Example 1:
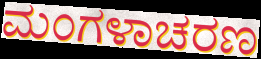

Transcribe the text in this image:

ಮಂಗಳಾಚರಣ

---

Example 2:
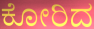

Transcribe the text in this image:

ಕೋರಿದ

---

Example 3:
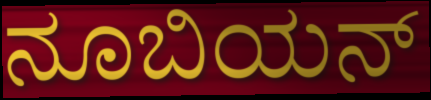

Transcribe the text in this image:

ನೂಬಿಯನ್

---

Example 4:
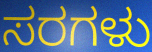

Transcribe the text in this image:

ಸರಗಳು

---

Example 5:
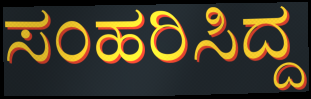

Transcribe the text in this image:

ಸಂಹರಿಸಿದ್ದ